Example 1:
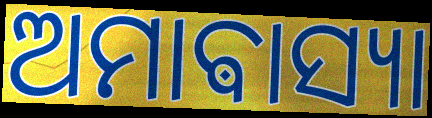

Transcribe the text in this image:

ଅମାଵାସ୍ୟା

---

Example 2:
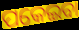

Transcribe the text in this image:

ପକେଇବା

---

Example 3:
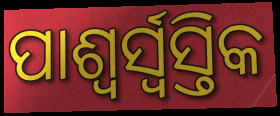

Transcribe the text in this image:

ପାଶ୍ୱର୍ସ୍ୱସ୍ତିକ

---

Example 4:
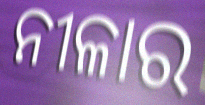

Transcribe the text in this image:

ନୀଳାର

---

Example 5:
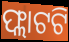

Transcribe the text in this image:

ଫ୍ଲାଟଟି